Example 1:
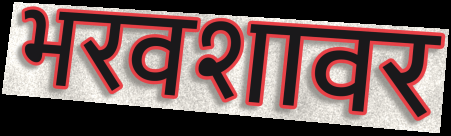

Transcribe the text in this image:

भरवशावर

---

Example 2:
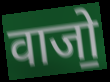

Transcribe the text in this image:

वाजो॒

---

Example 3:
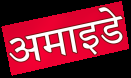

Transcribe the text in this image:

अमाइडे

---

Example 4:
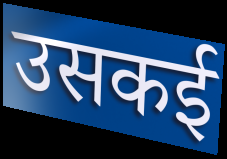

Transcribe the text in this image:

उसकई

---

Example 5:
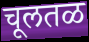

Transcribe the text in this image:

चूलतळ